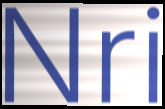
Nri